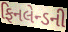
ફિનલેન્ડની